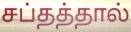
சப்தத்தால்